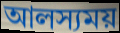
আলস্যময়